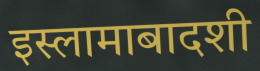
इस्लामाबादशी